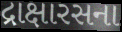
દ્રાક્ષારસના